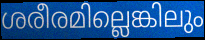
ശരീരമില്ലെങ്കിലും